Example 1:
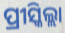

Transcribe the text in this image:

ପ୍ରୀସ୍କିଲ୍ଲା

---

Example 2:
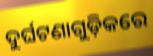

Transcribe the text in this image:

ଦୁର୍ଘଟଣାଗୁଡ଼ିକରେ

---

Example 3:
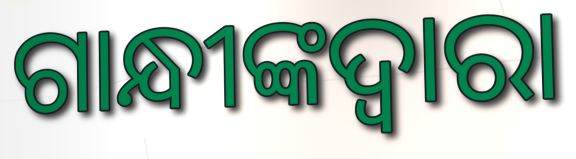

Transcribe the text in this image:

ଗାନ୍ଧୀଙ୍କଦ୍ଵାରା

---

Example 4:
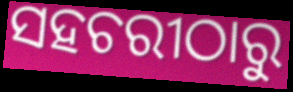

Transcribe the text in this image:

ସହଚରୀଠାରୁ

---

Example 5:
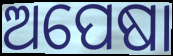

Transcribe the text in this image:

ଅପେଷା